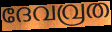
ദേവവ്രത